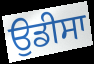
ਉਡੀਸਾ